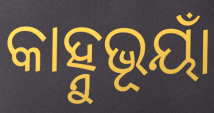
କାହ୍ନୁଭୂୟାଁ